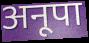
अनूपा